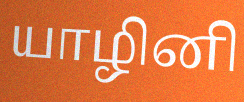
யாழினி